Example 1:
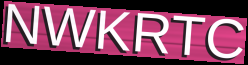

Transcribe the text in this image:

NWKRTC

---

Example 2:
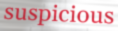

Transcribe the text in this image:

suspicious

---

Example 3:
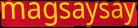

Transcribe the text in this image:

magsaysay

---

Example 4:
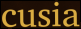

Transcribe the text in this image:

cusia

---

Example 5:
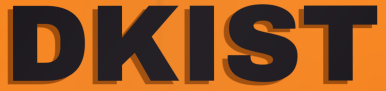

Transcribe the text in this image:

DKIST